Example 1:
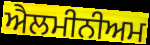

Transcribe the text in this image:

ਐਲਮੀਨੀਅਮ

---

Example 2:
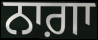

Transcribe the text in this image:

ਨਾਗ਼ਾ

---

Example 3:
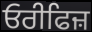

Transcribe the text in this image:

ਓਰੀਫਿਜ਼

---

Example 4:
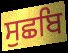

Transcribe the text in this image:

ਸੁਛਬਿ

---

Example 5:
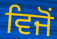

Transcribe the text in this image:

ਵਿਜੋਂ